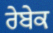
ਰੇਬੇਕ